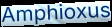
Amphioxus